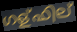
ഗള്ഫില്